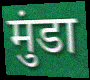
मुंडा